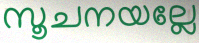
സൂചനയല്ലേ